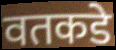
वतकडे